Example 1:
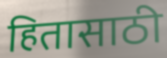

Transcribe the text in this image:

हितासाठी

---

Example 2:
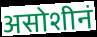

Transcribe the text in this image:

असोशीनं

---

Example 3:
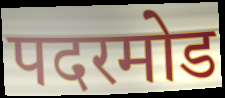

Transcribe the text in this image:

पदरमोड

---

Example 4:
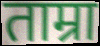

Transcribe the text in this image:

ताम्रा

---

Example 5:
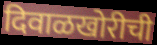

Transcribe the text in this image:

दिवाळखोरीची